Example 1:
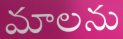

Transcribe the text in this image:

మాలను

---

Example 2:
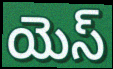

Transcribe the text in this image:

యెస్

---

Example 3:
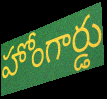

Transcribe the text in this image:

హోంగార్డు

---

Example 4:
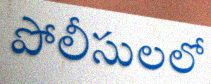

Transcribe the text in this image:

పోలీసులలో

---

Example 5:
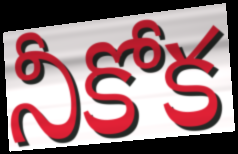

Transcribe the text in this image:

నీకోక